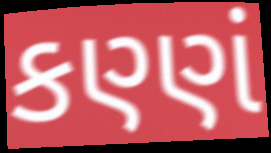
કણ્ણં